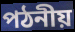
পঠনীয়